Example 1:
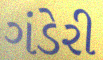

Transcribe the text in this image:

ગંડેરી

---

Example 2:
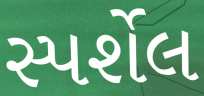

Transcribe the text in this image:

સ્પર્શેલ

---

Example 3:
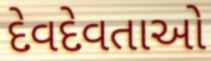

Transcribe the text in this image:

દેવદેવતાઓ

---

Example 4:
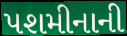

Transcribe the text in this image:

પશમીનાની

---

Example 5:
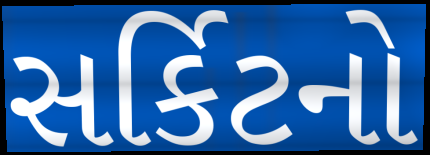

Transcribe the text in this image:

સર્કિટનો